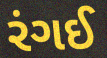
રંગઈ